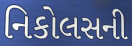
નિકોલસની